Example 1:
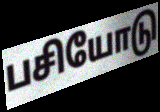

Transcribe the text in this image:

பசியோடு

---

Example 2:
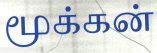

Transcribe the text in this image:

மூக்கன்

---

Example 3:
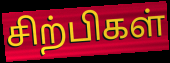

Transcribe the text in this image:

சிற்பிகள்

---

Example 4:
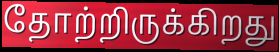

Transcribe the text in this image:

தோற்றிருக்கிறது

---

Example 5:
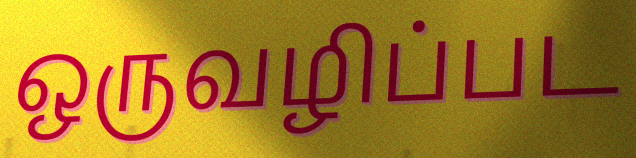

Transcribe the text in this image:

ஒருவழிப்பட